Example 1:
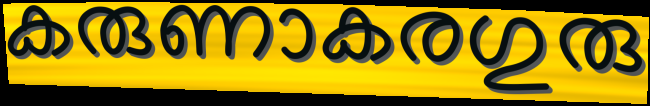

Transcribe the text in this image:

കരുണാകരഗുരു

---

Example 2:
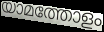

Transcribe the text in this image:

യാമത്തോളം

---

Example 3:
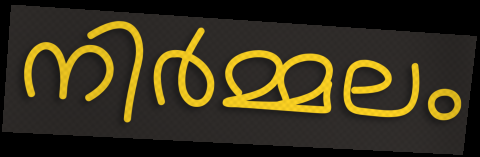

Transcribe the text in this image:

നിർമ്മലം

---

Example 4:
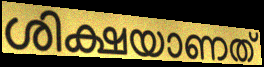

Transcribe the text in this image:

ശിക്ഷയാണത്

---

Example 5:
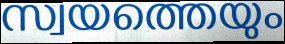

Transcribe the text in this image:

സ്വയത്തെയും